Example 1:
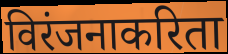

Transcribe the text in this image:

विरंजनाकरिता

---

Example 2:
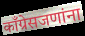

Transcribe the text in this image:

काँग्रेसजणांना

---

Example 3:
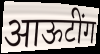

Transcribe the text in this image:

आऊटींग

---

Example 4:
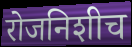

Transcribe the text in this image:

रोजनिशीच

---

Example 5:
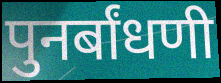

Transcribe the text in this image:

पुनर्बांधणी